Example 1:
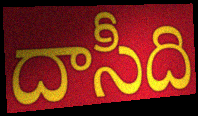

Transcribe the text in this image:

దాసీది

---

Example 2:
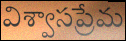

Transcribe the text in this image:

విశ్వాసప్రేమ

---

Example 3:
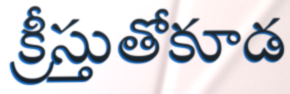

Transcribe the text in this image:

క్రీస్తుతోకూడ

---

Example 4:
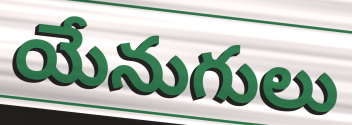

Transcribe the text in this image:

యేనుగులు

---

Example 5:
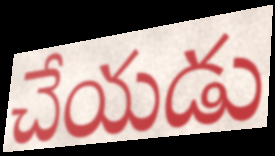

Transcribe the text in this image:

చేయడు